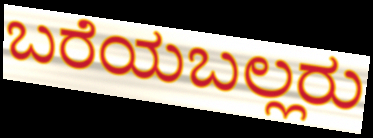
ಬರೆಯಬಲ್ಲರು